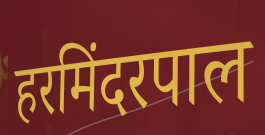
हरमिंदरपाल